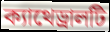
ক্যাথেড্রালটি